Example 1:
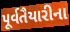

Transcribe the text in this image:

પૂર્વતૈયારીના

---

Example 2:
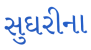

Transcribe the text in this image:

સુઘરીના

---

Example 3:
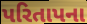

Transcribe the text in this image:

પરિતાપના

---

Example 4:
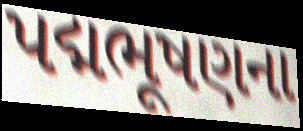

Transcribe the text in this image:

પદ્મભૂષણના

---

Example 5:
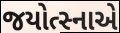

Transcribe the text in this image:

જયોત્સ્નાએ